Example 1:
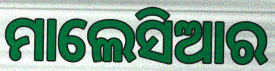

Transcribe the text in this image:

ମାଲେସିଆର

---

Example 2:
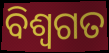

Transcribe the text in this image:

ବିଶ୍ୱଗତ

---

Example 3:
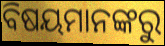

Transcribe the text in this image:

ବିଷୟମାନଙ୍କରୁ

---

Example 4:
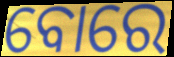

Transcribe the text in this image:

ବୋରେ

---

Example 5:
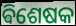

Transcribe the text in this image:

ଵିଶେଷକ